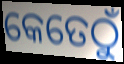
କେତେଠୁଁ